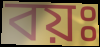
বয়ঃ